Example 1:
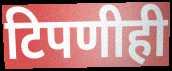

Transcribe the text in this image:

टिपणीही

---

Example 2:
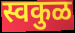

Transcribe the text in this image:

स्वकुळ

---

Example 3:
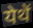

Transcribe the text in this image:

येथें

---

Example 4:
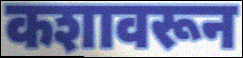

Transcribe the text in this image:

कशावरून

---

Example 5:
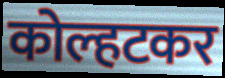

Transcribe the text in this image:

कोल्हटकर